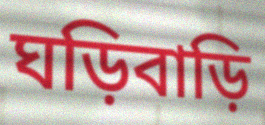
ঘড়িবাড়ি